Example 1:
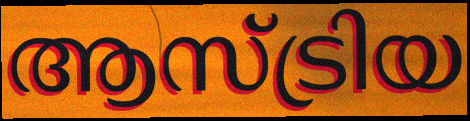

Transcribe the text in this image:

ആസ്ട്രിയ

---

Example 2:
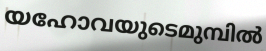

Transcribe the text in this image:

യഹോവയുടെമുമ്പിൽ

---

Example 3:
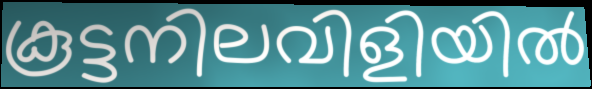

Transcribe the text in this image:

കൂട്ടനിലവിളിയിൽ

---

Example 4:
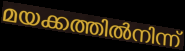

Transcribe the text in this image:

മയക്കത്തിൽനിന്ന്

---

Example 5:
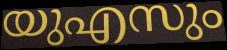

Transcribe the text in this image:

യുഎസും